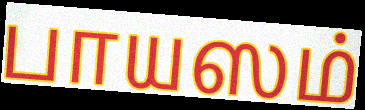
பாயஸம்